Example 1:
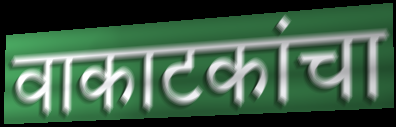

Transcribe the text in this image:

वाकाटकांचा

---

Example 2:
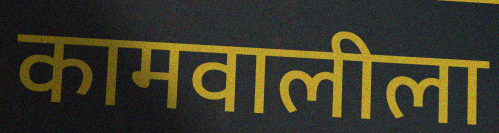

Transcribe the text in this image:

कामवालीला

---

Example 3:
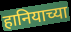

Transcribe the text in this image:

हानियाच्या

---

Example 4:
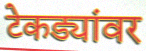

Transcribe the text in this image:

टेकड्यांवर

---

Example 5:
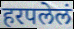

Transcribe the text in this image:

हरपलेलं